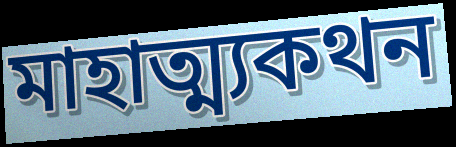
মাহাত্ম্যকথন